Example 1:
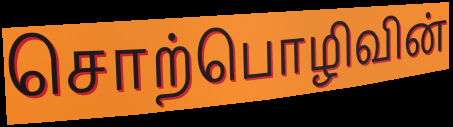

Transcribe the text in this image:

சொற்பொழிவின்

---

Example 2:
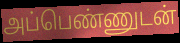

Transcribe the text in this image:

அப்பெண்ணுடன்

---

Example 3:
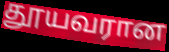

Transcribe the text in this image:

தூயவரான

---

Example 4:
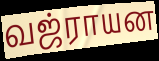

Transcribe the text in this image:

வஜ்ராயன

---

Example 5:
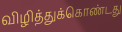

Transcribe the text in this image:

விழித்துக்கொண்டது